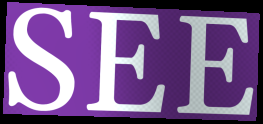
SEE